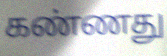
கண்ணது